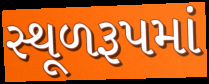
સ્થૂળરૂપમાં